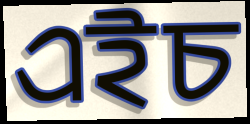
এইচ